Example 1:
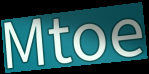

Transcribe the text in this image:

Mtoe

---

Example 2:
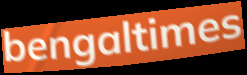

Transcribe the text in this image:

bengaltimes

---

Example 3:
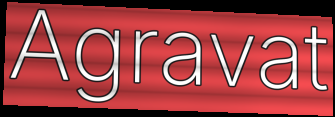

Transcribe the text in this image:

Agravat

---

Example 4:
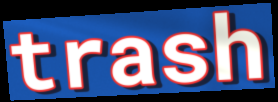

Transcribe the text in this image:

trash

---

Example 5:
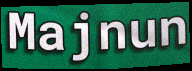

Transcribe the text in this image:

Majnun